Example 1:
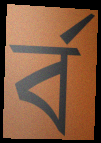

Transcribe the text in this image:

র্ব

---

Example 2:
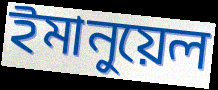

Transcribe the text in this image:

ইমানুয়েল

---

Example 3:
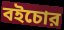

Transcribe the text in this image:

বইচোর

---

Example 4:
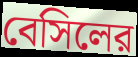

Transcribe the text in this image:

বেসিলের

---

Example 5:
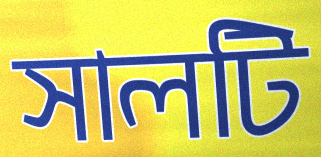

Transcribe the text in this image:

সালটি